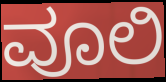
ವೂಲಿ